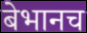
बेभानच